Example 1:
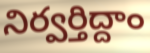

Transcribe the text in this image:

నిర్వర్తిద్దాం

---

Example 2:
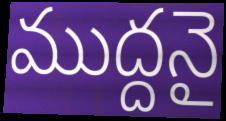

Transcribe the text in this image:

ముద్దనై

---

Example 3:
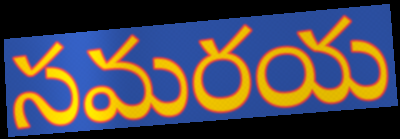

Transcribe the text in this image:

సమరయ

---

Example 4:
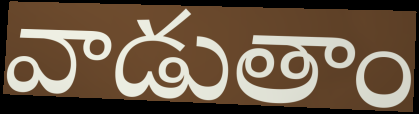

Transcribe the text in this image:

వాడుతాం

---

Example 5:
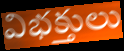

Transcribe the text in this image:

విభక్తులు